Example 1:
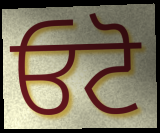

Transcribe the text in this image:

ਓਟੋ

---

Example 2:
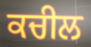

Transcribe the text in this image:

ਕਚੀਲ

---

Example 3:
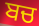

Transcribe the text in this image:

ਬਚ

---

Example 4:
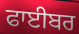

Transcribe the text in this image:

ਫਾਈਬਰ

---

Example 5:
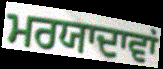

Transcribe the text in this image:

ਮਰਯਾਦਾਵਾਂ